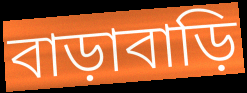
বাড়াবাড়ি